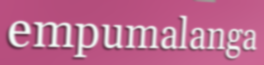
empumalanga